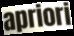
apriori